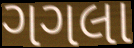
ગગલા